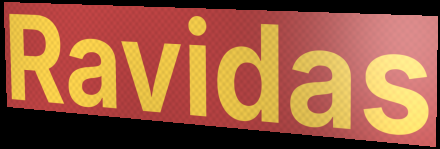
Ravidas